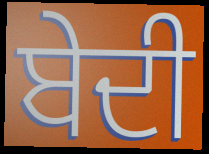
ਬੇਦੀ